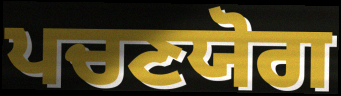
ਪਚਣਯੋਗ